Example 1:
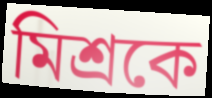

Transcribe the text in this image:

মিশ্রকে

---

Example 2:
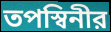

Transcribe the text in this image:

তপস্বিনীর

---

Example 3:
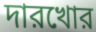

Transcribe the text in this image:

দারখোর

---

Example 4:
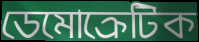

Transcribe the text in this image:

ডেমোক্রেটিক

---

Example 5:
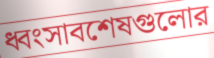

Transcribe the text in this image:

ধ্বংসাবশেষগুলোর